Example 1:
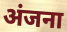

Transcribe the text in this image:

अंजना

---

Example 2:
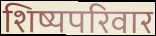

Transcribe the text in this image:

शिष्यपरिवार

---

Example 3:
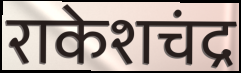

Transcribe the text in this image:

राकेशचंद्र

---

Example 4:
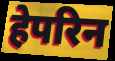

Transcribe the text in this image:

हेपरिन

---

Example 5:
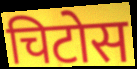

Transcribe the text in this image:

चिटोस